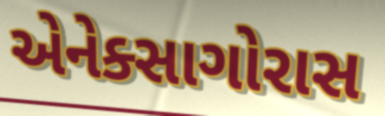
એનેક્સાગોરાસ